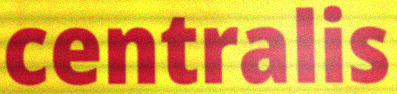
centralis